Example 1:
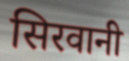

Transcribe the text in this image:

सिरवानी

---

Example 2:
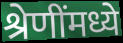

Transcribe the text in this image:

श्रेणींमध्ये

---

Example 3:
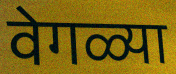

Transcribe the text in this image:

वेगळ्या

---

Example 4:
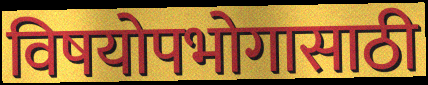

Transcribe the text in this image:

विषयोपभोगासाठी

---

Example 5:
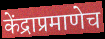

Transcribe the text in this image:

केंद्राप्रमाणेच